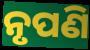
ନୃପଣି